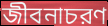
জীবনাচরণ